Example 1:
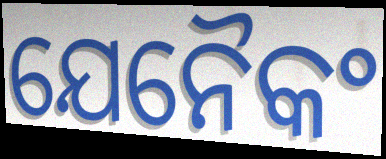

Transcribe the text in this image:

ଯେନୈକଂ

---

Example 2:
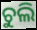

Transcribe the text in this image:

ଚୁଲି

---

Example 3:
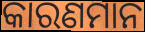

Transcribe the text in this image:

କାରଣମାନ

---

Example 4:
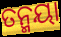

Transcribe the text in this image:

ତନ୍ମୟା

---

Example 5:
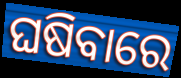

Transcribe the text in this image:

ଘଷିବାରେ